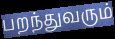
பறந்துவரும்